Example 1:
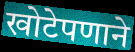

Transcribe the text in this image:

खोटेपणाने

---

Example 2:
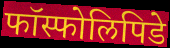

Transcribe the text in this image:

फॉस्फोलिपिडे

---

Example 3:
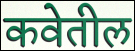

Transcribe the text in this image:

कवेतील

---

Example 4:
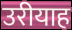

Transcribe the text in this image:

उरीयाह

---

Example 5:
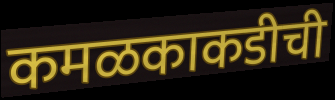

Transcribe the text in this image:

कमळकाकडीची